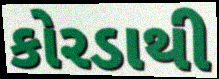
કોરડાથી